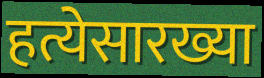
हत्येसारख्या